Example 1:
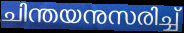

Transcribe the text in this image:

ചിന്തയനുസരിച്ച്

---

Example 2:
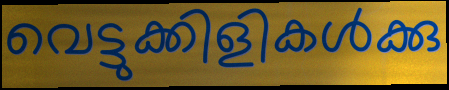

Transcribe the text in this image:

വെട്ടുക്കിളികൾക്കു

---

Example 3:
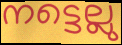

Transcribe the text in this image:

നട്ടെല്ലു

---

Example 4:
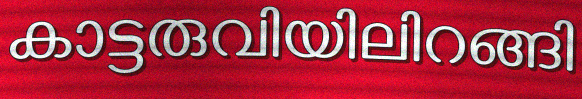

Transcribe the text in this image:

കാട്ടരുവിയിലിറങ്ങി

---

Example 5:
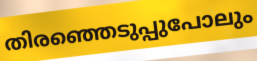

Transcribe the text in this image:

തിരഞ്ഞെടുപ്പുപോലും